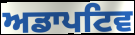
ਅਡਾਪਟਿਵ